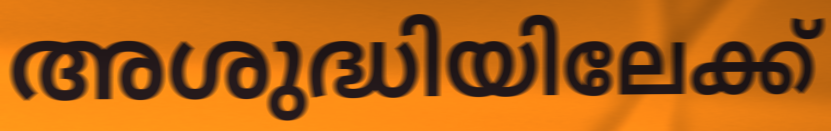
അശുദ്ധിയിലേക്ക്